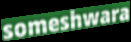
someshwara